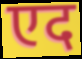
एद